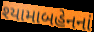
શ્યામાબહેનનાં